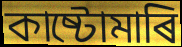
কাষ্টোমাৰি